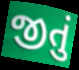
જીતું